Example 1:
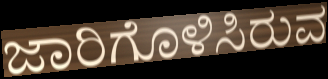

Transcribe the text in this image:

ಜಾರಿಗೊಳಿಸಿರುವ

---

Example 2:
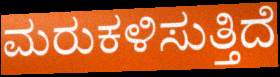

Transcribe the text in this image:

ಮರುಕಳಿಸುತ್ತಿದೆ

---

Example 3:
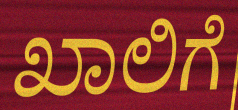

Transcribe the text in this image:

ಖಾಲಿಗೆ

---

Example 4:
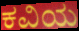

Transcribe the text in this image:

ಕವಿಯ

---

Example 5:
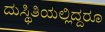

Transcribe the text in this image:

ದುಸ್ಥಿತಿಯಲ್ಲಿದ್ದರೂ